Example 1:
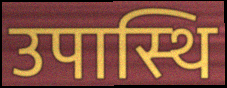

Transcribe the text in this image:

उपास्थि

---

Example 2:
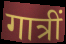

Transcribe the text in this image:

गात्रीं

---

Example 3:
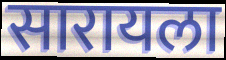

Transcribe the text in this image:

सारायला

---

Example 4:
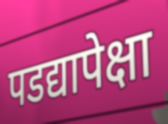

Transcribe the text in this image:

पडद्यापेक्षा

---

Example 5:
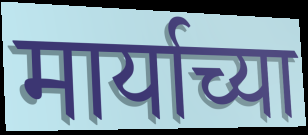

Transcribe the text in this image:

मार्याच्या